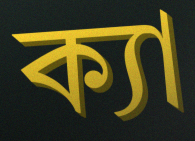
ক্যা